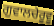
ਗੁਵਾਲਚੇਰੂਵੂ